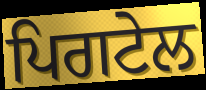
ਪਿਗਟੇਲ